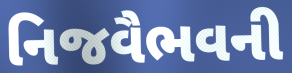
નિજવૈભવની